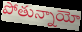
పోతున్నాయో